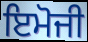
ਇਮੋਜੀ